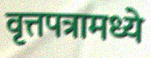
वृत्तपत्रामध्ये